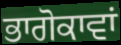
ਭਾਗੋਕਾਵਾਂ